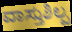
ವಾಸ್ತುಶಿಲ್ಪ